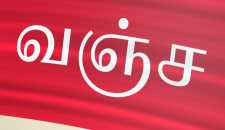
வஞ்ச